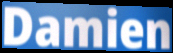
Damien